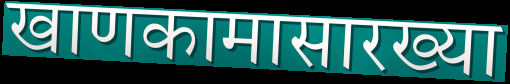
खाणकामासारख्या